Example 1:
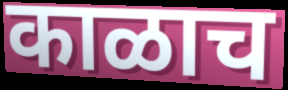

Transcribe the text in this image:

काळाच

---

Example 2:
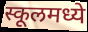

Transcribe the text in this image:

स्कूलमध्ये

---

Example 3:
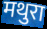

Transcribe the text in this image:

मथुरा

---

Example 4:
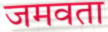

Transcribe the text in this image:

जमवता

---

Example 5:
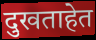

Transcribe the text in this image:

दुखताहेत